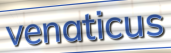
venaticus